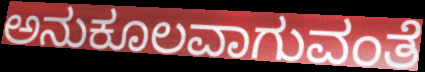
ಅನುಕೂಲವಾಗುವಂತೆ